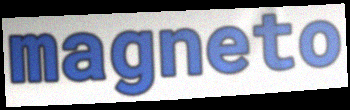
magneto